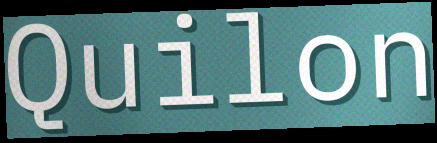
Quilon